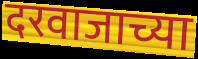
दरवाजाच्या